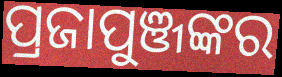
ପ୍ରଜାପୁଞ୍ଜଙ୍କର